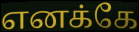
எனக்கே